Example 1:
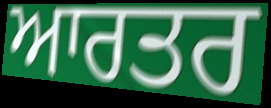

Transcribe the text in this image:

ਆਰਤਰ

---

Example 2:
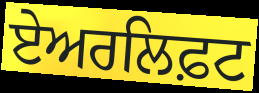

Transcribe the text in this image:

ਏਅਰਲਿਫ਼ਟ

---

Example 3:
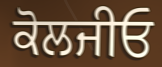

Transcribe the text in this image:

ਕੋਲਜੀਓ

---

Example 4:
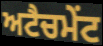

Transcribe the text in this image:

ਅਟੈਚਮੇਂਟ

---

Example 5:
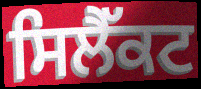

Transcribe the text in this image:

ਸਿਲੈੱਕਟ